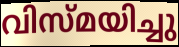
വിസ്മയിച്ചു